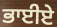
ਭਾਈਏ